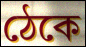
ঠেকে